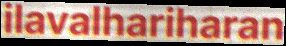
ilavalhariharan